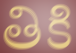
తికి